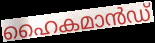
ഹൈകമാൻഡ്